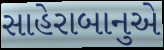
સાહેરાબાનુએ